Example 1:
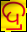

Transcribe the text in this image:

ଦ୍ର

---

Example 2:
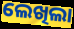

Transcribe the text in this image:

ଲେଖିଲା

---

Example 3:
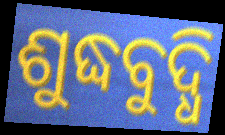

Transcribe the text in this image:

ଶୁଦ୍ଧବୁଦ୍ଧି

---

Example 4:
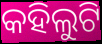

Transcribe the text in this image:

କହିଲୁଟି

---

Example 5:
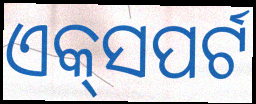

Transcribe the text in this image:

ଏକ୍‌ସପର୍ଟ